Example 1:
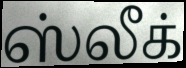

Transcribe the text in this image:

ஸ்லீக்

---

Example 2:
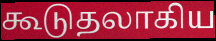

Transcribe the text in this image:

கூடுதலாகிய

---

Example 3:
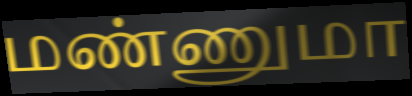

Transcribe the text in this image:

மண்ணுமா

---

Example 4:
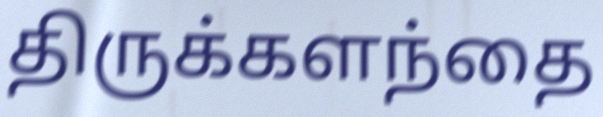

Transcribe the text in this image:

திருக்களந்தை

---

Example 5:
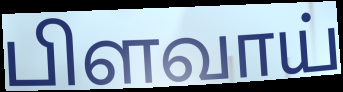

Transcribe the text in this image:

பிளவாய்